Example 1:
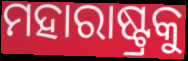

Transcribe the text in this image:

ମହାରାଷ୍ଟ୍ରକୁ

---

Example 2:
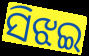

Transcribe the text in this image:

ସିଝଇ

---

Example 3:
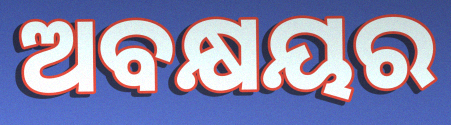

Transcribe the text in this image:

ଅବକ୍ଷୟର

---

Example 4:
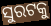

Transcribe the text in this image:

ସୁରଟକୁ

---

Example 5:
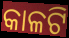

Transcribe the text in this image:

କାଳଟି